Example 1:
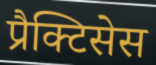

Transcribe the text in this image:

प्रैक्टिसेस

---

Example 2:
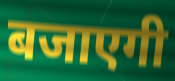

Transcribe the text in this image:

बजाएगी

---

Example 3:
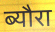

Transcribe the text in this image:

ब्यौरा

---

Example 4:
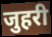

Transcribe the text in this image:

जुहरी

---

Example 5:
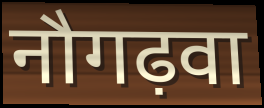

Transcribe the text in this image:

नौगढ़वा